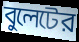
বুলেটের